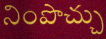
నింపొచ్చు